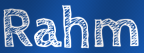
Rahm